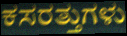
ಕಸರತ್ತುಗಳು